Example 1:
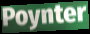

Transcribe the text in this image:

Poynter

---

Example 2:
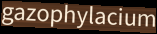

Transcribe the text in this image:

gazophylacium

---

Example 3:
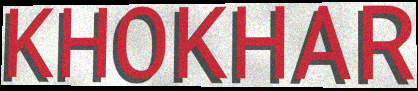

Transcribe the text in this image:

KHOKHAR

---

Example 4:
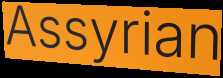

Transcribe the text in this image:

Assyrian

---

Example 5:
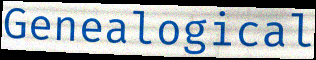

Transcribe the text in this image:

Genealogical